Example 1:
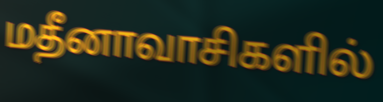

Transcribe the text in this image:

மதீனாவாசிகளில்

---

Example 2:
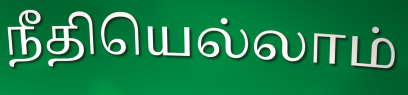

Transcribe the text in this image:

நீதியெல்லாம்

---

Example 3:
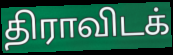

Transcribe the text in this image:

திராவிடக்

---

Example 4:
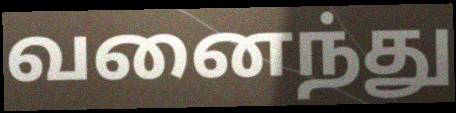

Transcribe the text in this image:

வனைந்து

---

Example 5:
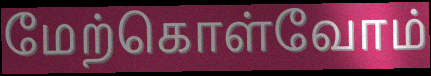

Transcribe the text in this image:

மேற்கொள்வோம்